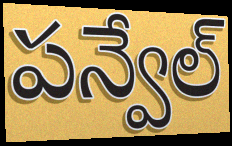
పన్వేల్